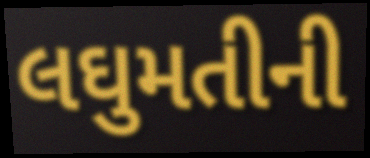
લઘુમતીની